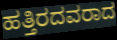
ಹತ್ತಿರದವರಾದ